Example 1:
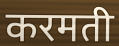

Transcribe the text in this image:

करमती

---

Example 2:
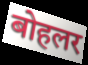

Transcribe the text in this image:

बोहलर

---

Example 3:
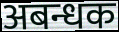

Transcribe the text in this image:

अबन्धक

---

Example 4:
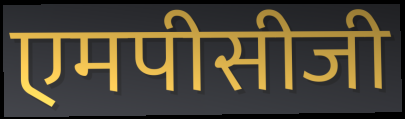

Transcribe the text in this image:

एमपीसीजी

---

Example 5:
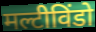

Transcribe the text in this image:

मल्टीविंडो